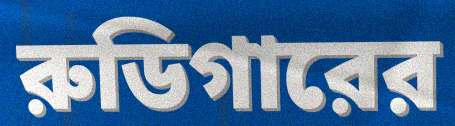
রুডিগারের